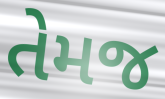
તેમજ